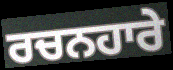
ਰਚਨਹਾਰੇ